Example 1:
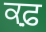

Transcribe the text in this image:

ਕ਼ਫ਼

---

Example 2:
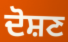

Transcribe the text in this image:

ਦੋਸ਼ਣ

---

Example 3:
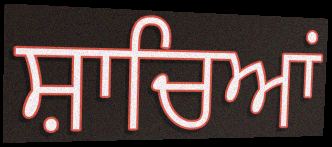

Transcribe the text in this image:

ਸ਼ਾਚਿਆਂ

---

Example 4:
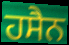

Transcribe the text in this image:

ਹਸੈਨ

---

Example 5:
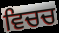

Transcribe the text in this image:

ਵਿਚਚ